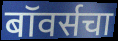
बॉवर्सचा